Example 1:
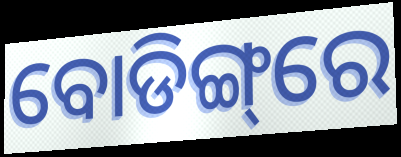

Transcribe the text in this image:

ବୋଡିଙ୍ଗ୍‌ରେ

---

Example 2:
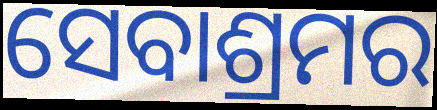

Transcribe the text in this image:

ସେବାଶ୍ରମର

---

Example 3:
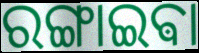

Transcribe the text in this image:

ରଙ୍ଗାଇଵା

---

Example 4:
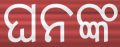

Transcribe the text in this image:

ଘନଙ୍କ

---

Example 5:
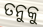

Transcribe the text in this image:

ତନୁକୁ